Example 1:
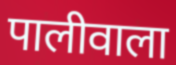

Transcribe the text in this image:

पालीवाला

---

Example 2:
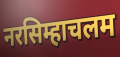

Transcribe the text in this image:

नरसिम्हाचलम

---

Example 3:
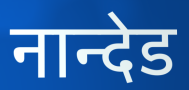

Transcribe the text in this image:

नान्देड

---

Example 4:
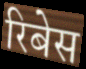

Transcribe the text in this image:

रिबेस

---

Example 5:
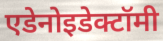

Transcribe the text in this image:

एडेनोइडेक्टॉमी